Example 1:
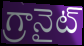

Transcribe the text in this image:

గ్రానైట్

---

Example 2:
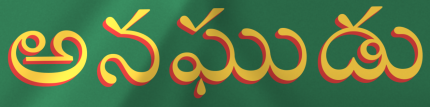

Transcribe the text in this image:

అనఘుడు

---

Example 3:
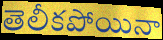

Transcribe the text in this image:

తెలీకపోయినా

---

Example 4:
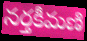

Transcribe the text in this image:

నర్తకీమణి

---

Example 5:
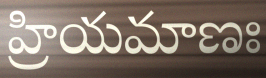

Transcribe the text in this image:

హ్రియమాణః